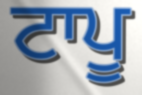
ਟਾਪੂ